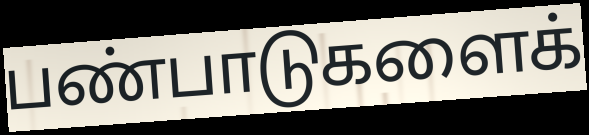
பண்பாடுகளைக்